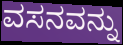
ವಸನವನ್ನು